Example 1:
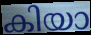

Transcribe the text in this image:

കിയാ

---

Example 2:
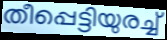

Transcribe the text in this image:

തീപ്പെട്ടിയുരച്ച്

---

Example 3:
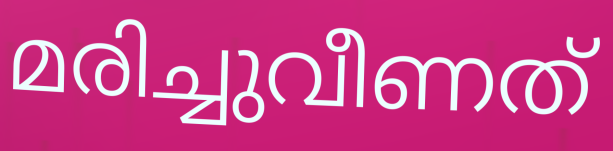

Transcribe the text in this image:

മരിച്ചുവീണത്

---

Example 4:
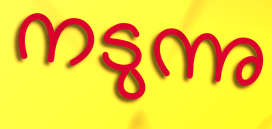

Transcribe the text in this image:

നടുന്നു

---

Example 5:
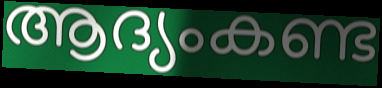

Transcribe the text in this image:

ആദ്യംകണ്ട